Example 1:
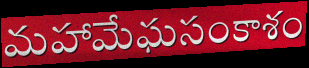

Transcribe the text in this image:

మహామేఘసంకాశం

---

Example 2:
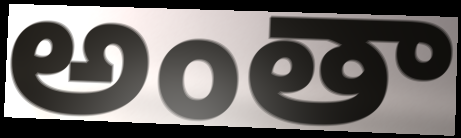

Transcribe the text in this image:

అంతా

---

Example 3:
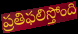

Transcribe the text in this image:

ప్రతిఫలిస్తోంది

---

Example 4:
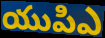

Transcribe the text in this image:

యుపిఎ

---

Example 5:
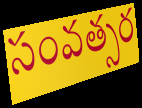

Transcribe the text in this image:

సంవత్సర